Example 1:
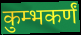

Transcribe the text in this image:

कुम्भकर्णं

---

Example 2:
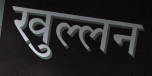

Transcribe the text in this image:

खुल्लन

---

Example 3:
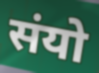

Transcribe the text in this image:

संयो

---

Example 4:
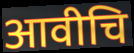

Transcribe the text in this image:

आवीचि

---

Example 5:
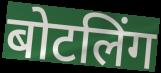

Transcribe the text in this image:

बोटलिंग